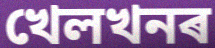
খেলখনৰ